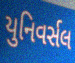
યુનિવર્સલ